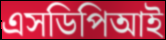
এসডিপিআই